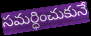
సమర్ధించుకునే